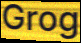
Grog